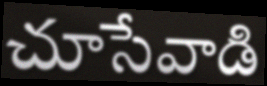
చూసేవాడి